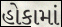
હોકામાં